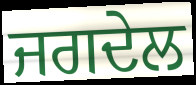
ਜਗਦੇਲ